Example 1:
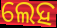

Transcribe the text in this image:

ଲେହ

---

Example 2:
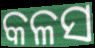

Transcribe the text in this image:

କଳସ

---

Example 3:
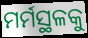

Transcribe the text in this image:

ମର୍ମସ୍ଥଳକୁ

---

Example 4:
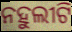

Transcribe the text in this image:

ନହୁଲୀଟି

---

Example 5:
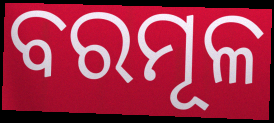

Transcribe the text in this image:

ବରମୂଳ